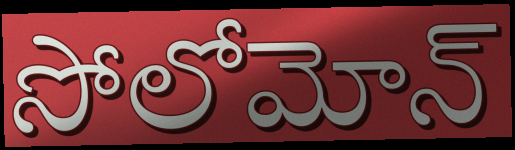
సోలోమోన్